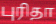
புரிதா